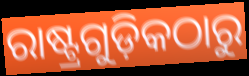
ରାଷ୍ଟ୍ରଗୁଡ଼ିକଠାରୁ